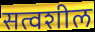
सत्वशील